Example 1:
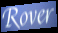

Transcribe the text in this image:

Rover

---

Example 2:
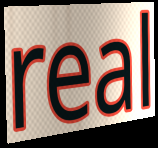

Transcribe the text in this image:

real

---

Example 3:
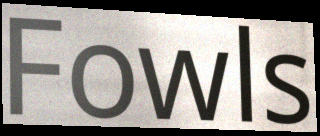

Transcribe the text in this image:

Fowls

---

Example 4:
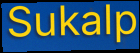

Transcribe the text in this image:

Sukalp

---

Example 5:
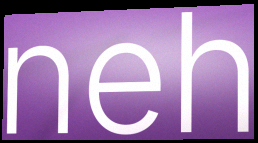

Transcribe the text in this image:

neh